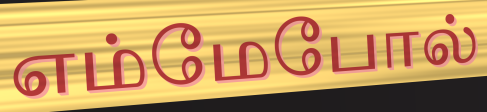
எம்மேபோல்